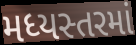
મધ્યસ્તરમાં